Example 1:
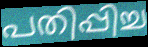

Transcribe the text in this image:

പതിപ്പിച്ച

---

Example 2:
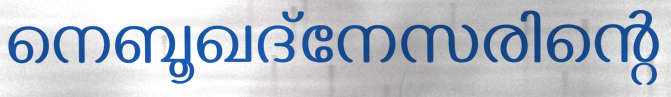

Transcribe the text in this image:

നെബൂഖദ്നേസരിന്റെ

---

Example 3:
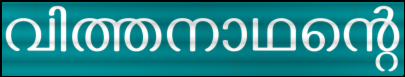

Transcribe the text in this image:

വിത്തനാഥന്റെ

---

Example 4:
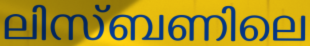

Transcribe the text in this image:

ലിസ്ബണിലെ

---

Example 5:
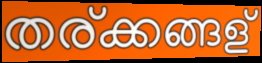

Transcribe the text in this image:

തര്ക്കങ്ങള്